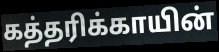
கத்தரிக்காயின்